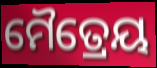
ମୈତ୍ରେୟ